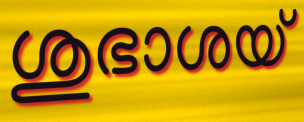
ശുഭാശയ്